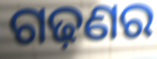
ଗଢ଼ଣର